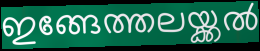
ഇങ്ങേത്തലയ്ക്കൽ